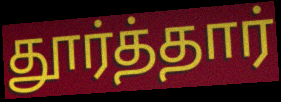
தூர்த்தார்